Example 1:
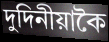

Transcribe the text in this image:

দুদিনীয়াকৈ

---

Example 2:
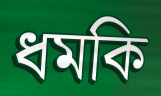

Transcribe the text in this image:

ধমকি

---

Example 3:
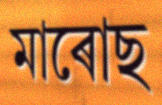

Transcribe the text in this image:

মাৰোছ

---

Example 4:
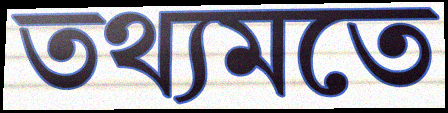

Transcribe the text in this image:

তথ্যমতে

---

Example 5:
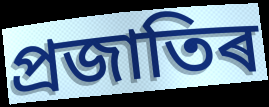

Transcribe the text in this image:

প্ৰজাতিৰ